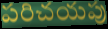
పరిచయపు